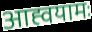
आह्वयामः